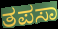
ತಪಸಾ